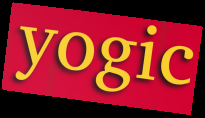
yogic